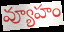
వ్యూహం